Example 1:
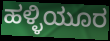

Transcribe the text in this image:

ಹಳ್ಳಿಯೂರ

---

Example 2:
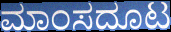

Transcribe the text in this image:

ಮಾಂಸದೂಟ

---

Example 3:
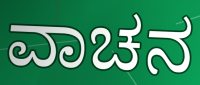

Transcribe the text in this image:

ವಾಚನ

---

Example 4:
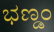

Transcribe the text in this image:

ಭಣ್ಡಂ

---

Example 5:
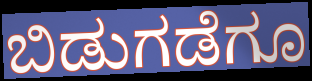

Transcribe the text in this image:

ಬಿಡುಗಡೆಗೂ